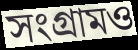
সংগ্রামও